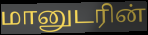
மானுடரின்